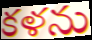
కళను